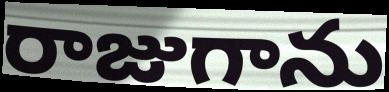
రాజుగాను